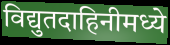
विद्युतदाहिनीमध्ये